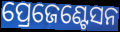
ପ୍ରେଜେଣ୍ଟେସନ